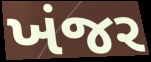
ખંજર